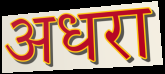
अधरा